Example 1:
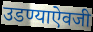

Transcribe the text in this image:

उडण्याऐवजी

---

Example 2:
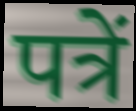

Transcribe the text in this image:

पत्रें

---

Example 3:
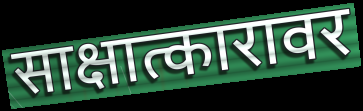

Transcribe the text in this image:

साक्षात्कारावर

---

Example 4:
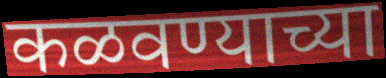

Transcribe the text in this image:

कळवण्याच्या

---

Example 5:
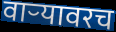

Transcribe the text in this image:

वाऱ्यावरच